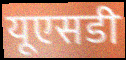
यूएसडी